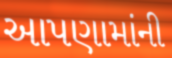
આપણામાંની